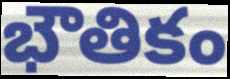
భౌతికం